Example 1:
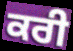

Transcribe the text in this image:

ਕਰੀ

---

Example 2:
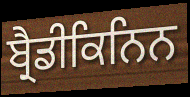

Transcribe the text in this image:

ਬ੍ਰੈਡੀਕਿਨਿਨ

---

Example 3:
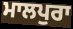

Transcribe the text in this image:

ਮਾਲਪੁਰਾ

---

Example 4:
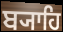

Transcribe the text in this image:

ਬ੍ਯਾਹਿ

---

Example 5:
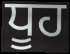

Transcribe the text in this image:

ਧੂਹ